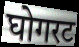
घोगरट